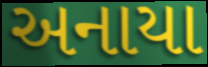
અનાયા